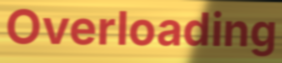
Overloading